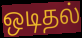
ஒடிதல்